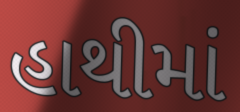
હાથીમાં